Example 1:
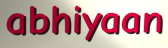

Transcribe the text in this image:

abhiyaan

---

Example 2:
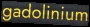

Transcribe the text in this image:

gadolinium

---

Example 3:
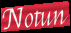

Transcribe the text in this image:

Notun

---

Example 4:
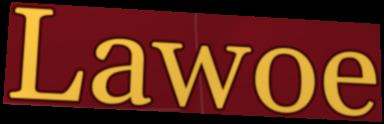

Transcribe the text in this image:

Lawoe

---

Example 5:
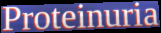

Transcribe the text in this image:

Proteinuria